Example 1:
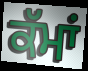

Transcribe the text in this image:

ਕੱਮਾਂ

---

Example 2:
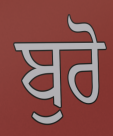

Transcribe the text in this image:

ਬੁਰੋ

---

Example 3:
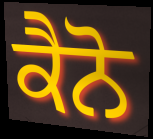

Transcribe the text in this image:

ਕੈਨੋ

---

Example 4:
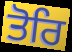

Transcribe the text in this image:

ਤੋਰਿ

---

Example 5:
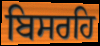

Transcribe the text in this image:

ਬਿਸਰਹਿ